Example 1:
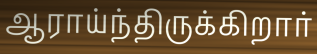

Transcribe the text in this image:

ஆராய்ந்திருக்கிறார்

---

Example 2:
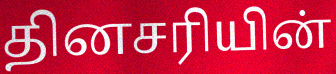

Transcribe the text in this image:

தினசரியின்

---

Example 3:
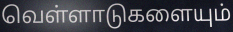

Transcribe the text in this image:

வெள்ளாடுகளையும்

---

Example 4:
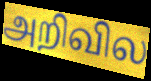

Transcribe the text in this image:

அறிவில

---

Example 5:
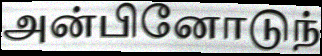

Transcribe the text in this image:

அன்பினோடுந்